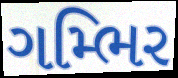
ગમ્ભિર